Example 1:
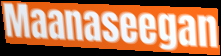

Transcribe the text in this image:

Maanaseegan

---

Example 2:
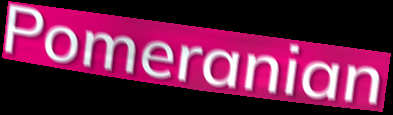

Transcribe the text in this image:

Pomeranian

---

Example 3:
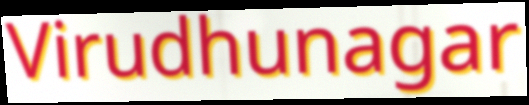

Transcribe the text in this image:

Virudhunagar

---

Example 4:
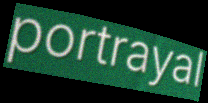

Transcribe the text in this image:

portrayal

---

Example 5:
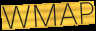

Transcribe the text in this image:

WMAP